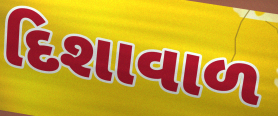
દિશાવાળ